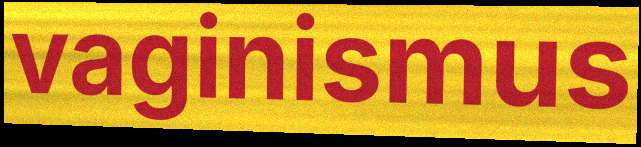
vaginismus